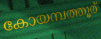
കോയമ്പത്തൂര്